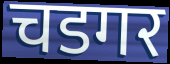
चडगर